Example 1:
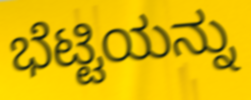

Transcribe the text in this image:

ಭೆಟ್ಟಿಯನ್ನು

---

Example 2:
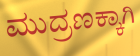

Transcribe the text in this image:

ಮುದ್ರಣಕ್ಕಾಗಿ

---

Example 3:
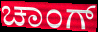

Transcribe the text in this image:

ಚಾಂಗ್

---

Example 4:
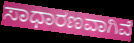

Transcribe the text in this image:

ಸಾಧಾರಣವಾಗಿವೆ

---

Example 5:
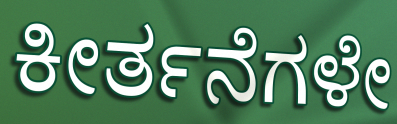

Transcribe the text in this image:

ಕೀರ್ತನೆಗಳೇ